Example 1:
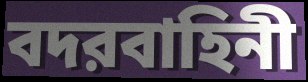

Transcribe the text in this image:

বদরবাহিনী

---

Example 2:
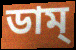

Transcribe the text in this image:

ডাম্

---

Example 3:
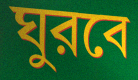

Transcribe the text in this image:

ঘুরবে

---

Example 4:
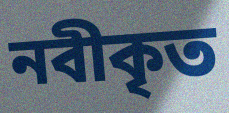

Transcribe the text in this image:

নবীকৃত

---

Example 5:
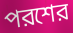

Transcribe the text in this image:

পরশের